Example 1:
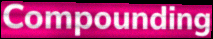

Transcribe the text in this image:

Compounding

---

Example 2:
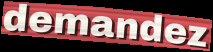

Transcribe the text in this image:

demandez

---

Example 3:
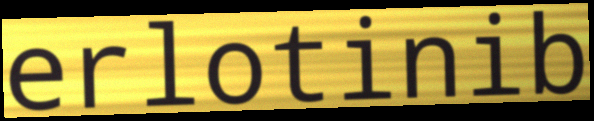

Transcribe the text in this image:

erlotinib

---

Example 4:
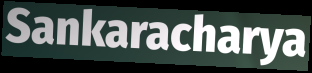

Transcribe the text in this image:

Sankaracharya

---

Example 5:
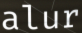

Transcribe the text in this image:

alur